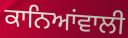
ਕਾਨਿਆਂਵਾਲੀ